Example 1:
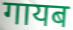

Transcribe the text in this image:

गायब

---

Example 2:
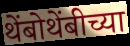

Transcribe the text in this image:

थेंबोथेंबीच्या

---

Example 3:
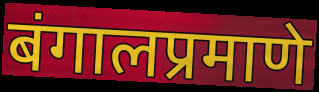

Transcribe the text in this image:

बंगालप्रमाणे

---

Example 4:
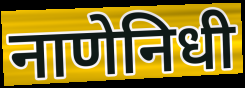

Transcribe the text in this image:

नाणेनिधी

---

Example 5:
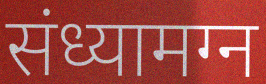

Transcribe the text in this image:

संध्यामग्न